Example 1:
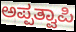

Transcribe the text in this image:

ಅಪ್ಪತ್ವಾಪಿ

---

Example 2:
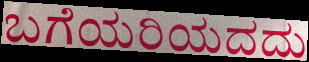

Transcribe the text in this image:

ಬಗೆಯರಿಯದದು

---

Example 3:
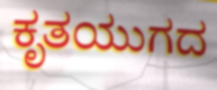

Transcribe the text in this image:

ಕೃತಯುಗದ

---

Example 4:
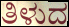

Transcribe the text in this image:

ತಿಳುದ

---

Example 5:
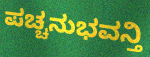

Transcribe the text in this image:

ಪಚ್ಚನುಭವನ್ತಿ